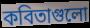
কবিতাগুলো